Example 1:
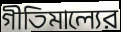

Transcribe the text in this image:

গীতিমাল্যের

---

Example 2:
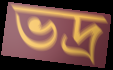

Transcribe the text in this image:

ভদ্র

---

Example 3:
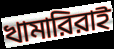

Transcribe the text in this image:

খামারিরাই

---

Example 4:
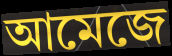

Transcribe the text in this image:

আমেজে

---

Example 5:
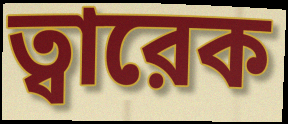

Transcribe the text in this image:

ত্বারেক